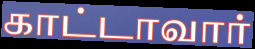
காட்டாவார்